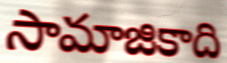
సామాజికాది